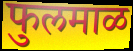
फुलमाळ